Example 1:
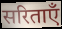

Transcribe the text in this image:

सरिताएँ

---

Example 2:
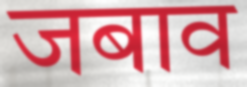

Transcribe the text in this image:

जबाव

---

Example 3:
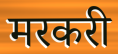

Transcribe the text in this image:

मरकरी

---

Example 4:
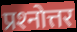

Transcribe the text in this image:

प्रश्‍नोत्तर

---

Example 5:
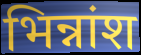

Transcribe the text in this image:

भिन्नांश